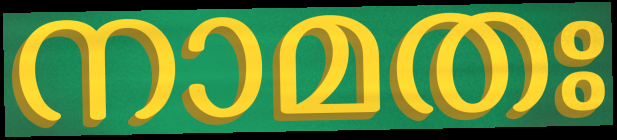
നാമതഃ